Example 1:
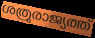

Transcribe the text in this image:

ശത്രുരാജ്യത്ത്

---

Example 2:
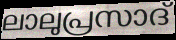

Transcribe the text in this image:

ലാലുപ്രസാദ്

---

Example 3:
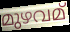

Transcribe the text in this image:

മുഴവമ്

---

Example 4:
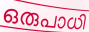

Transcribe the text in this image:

ഒരുപാധി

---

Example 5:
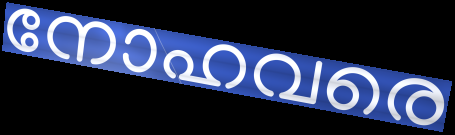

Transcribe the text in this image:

നോഹവരെ